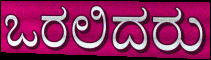
ಒರಲಿದರು